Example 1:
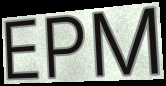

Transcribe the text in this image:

EPM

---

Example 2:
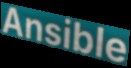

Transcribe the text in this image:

Ansible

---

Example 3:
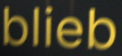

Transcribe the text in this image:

blieb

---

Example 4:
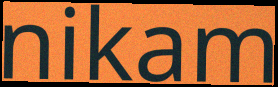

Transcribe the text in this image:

nikam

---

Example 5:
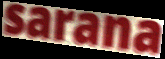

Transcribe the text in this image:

sarana